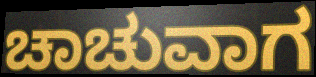
ಚಾಚುವಾಗ